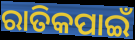
ରାତିକପାଇଁ